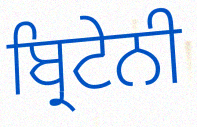
ਬ੍ਰਿਟੇਨੀ